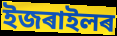
ইজৰাইলৰ